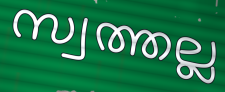
സ്വത്തല്ല